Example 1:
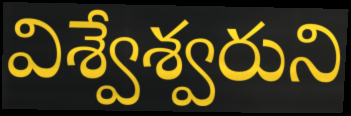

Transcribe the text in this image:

విశ్వేశ్వరుని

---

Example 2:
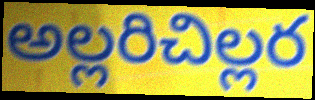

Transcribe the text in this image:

అల్లరిచిల్లర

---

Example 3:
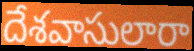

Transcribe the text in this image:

దేశవాసులారా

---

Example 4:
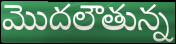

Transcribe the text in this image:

మొదలౌతున్న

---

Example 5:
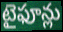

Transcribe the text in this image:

టైఫూన్లు